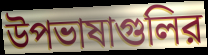
উপভাষাগুলির